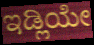
ಇಡ್ಲಿಯೇ